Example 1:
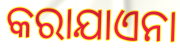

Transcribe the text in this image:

କରାଯାଏନା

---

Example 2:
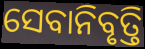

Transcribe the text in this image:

ସେବାନିବୃତ୍ତି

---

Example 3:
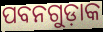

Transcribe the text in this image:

ପବନଗୁଡ଼ାକ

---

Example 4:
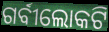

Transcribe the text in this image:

ଗର୍ବୀଲୋକଟି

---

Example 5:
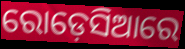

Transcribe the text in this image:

ରୋଡ଼େସିଆରେ